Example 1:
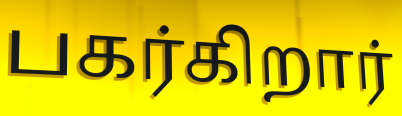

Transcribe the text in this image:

பகர்கிறார்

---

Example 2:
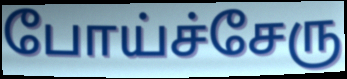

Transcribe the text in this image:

போய்ச்சேரு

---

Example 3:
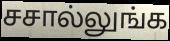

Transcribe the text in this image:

சசால்லுங்க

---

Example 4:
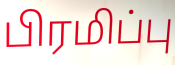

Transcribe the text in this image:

பிரமிப்பு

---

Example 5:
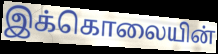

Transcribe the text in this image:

இக்கொலையின்